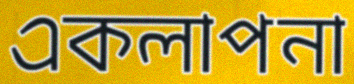
একলাপনা